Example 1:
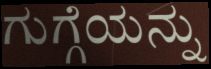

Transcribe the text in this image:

ಗುಗ್ಗೆಯನ್ನು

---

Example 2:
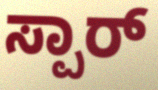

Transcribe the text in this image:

ಸ್ಪಾರ್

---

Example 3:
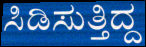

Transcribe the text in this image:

ಸಿಡಿಸುತ್ತಿದ್ದ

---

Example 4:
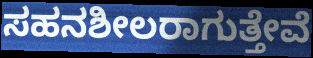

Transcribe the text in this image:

ಸಹನಶೀಲರಾಗುತ್ತೇವೆ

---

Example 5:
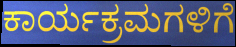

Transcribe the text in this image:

ಕಾರ್ಯಕ್ರಮಗಳಿಗೆ